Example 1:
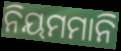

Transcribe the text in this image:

ନିୟମମାନି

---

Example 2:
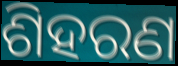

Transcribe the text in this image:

ଶିହରଣ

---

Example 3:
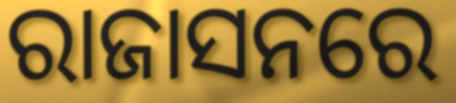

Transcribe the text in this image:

ରାଜାସନରେ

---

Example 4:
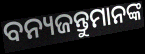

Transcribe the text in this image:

ବନ୍ୟଜନ୍ତୁମାନଙ୍କ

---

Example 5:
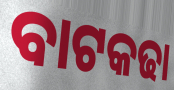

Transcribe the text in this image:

ବାଟକଢା